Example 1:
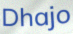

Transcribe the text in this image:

Dhajo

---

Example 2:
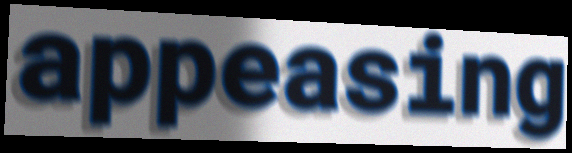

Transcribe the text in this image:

appeasing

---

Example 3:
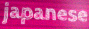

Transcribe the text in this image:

japanese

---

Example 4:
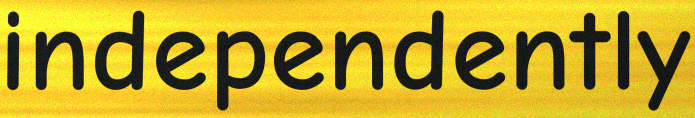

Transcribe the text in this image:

independently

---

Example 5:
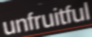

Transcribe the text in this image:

unfruitful